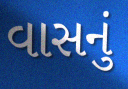
વાસનું